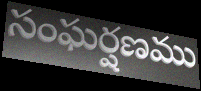
సంఘర్షణము